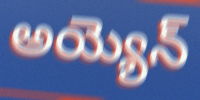
అయ్యెన్